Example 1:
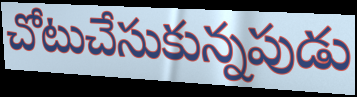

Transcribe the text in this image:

చోటుచేసుకున్నపుడు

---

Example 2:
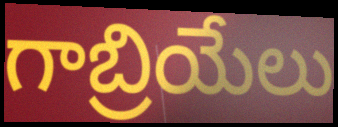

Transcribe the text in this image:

గాబ్రియేలు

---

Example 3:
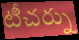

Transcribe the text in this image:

టీచర్ను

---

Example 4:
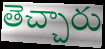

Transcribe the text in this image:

తెచ్చారు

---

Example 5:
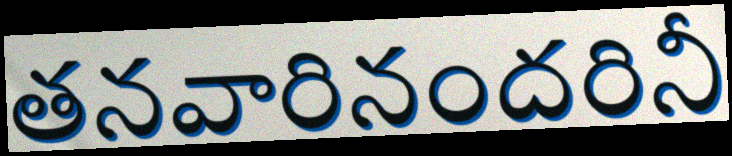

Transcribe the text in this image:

తనవారినందరినీ